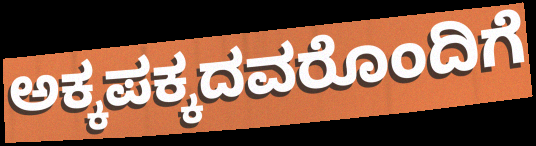
ಅಕ್ಕಪಕ್ಕದವರೊಂದಿಗೆ